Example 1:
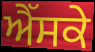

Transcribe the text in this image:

ਐੱਸਕੇ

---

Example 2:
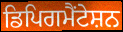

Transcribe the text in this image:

ਡਿਪਿਗਮੈਂਟੇਸ਼ਨ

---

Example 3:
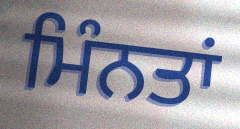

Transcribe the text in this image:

ਮਿੰਨਤਾਂ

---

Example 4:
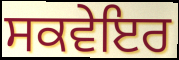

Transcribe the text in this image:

ਸਕਵੇਇਰ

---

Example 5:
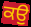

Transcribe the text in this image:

ਕਉੁ